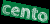
cento